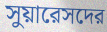
সুয়ারেসদের